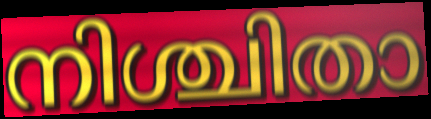
നിശ്ചിതാ